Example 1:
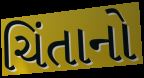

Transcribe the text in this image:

ચિંતાનો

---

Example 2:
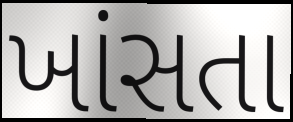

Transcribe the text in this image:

ખાંસતા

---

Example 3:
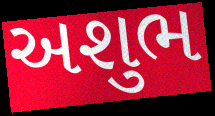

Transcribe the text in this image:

અશુભ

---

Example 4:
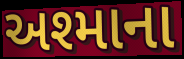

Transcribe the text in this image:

અશ્માના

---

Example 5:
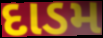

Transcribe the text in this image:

દાડમ